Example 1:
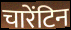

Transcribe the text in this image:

चारेंटिन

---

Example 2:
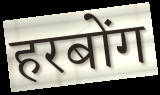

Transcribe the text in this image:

हरबोंग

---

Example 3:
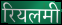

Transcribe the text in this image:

रियलमी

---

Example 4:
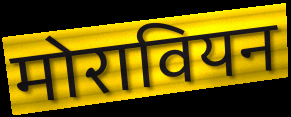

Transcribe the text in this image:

मोरावियन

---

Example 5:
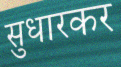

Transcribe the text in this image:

सुधारकर